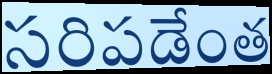
సరిపడేంత